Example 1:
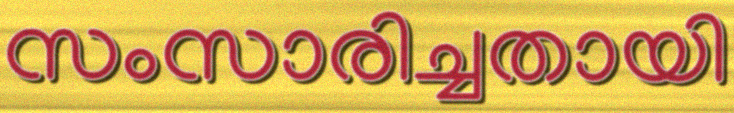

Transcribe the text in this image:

സംസാരിച്ചതായി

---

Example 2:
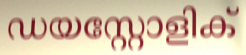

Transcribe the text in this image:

ഡയസ്റ്റോളിക്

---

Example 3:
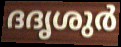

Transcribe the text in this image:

ദദൃശുർ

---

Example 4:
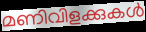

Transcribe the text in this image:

മണിവിളക്കുകൾ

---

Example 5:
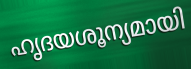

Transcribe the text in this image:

ഹൃദയശൂന്യമായി